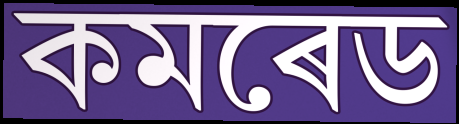
কমৰেড